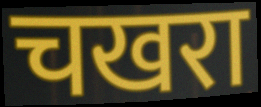
चखरा